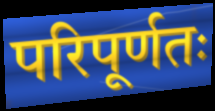
परिपूर्णतः